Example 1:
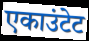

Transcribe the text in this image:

एकाउंटेट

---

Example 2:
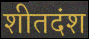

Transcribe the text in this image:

शीतदंश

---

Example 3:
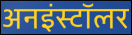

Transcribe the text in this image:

अनइंस्टॉलर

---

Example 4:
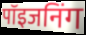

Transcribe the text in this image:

पॉइजनिंग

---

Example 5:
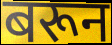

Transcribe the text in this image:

बरून